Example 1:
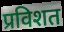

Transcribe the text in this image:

प्रविशत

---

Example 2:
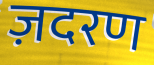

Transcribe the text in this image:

ज़दरण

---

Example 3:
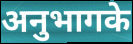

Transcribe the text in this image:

अनुभागके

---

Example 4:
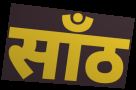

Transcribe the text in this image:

साँठ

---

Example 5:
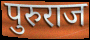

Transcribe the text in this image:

पुरुराज